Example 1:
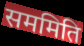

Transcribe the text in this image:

सममिति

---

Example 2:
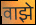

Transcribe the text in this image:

वाझे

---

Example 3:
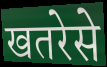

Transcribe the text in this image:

खतरेसे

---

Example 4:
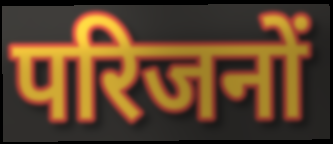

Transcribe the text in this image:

परिजनों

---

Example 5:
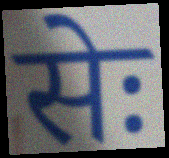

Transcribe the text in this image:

सेः